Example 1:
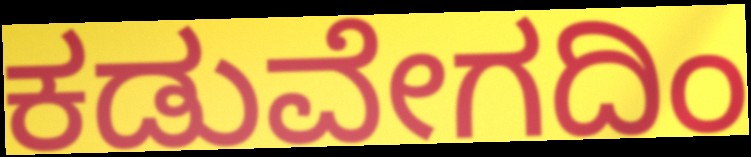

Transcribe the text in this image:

ಕಡುವೇಗದಿಂ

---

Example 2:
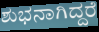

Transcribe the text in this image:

ಶುಭನಾಗಿದ್ದರೆ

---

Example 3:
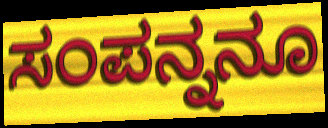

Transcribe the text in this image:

ಸಂಪನ್ನನೂ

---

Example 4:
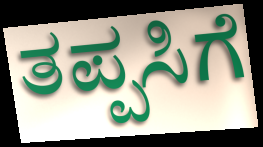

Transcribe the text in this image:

ತಪ್ಪಸಿಗೆ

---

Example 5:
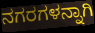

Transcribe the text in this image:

ನಗರಗಳನ್ನಾಗಿ